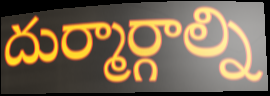
దుర్మార్గాల్ని